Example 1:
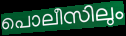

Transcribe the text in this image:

പൊലീസിലും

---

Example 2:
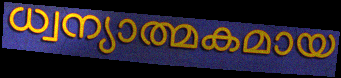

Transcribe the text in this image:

ധ്വന്യാത്മകമായ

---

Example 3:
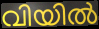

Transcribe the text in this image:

വിയിൽ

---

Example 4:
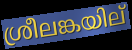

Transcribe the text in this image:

ശ്രീലങ്കയില്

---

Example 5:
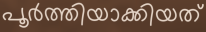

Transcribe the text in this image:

പൂർത്തിയാക്കിയത്